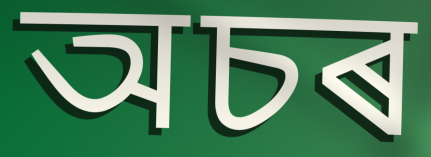
অচৰ